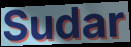
Sudar